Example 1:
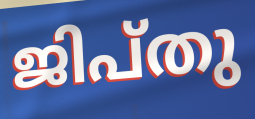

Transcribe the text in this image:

ജിപ്തു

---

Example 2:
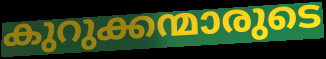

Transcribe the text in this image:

കുറുക്കന്മാരുടെ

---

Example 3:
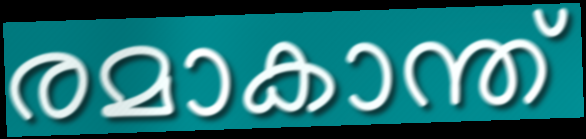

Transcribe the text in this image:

രമാകാന്ത്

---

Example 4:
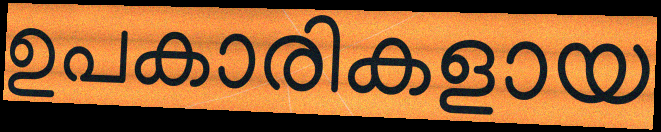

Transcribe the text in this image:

ഉപകാരികളായ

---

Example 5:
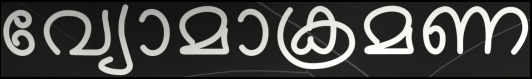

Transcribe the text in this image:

വ്യോമാക്രമണ